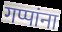
गप्पांना